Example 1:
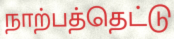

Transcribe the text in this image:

நாற்பத்தெட்டு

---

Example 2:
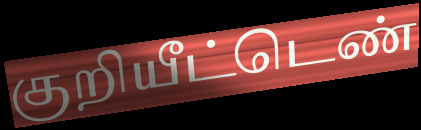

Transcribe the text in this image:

குறியீட்டெண்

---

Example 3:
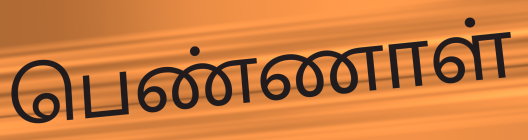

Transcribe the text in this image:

பெண்ணாள்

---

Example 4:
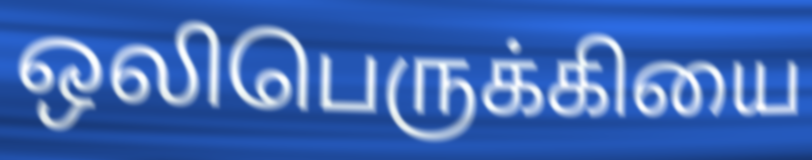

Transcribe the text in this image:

ஒலிபெருக்கியை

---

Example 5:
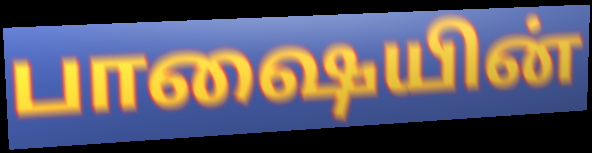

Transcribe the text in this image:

பாஷையின்